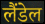
लैंडेल